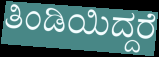
ತಿಂಡಿಯಿದ್ದರೆ